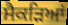
ਸੈਕੜਿਆਂ